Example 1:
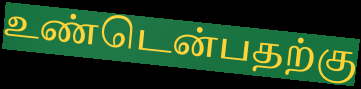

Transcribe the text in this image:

உண்டென்பதற்கு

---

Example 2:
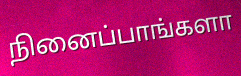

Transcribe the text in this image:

நினைப்பாங்களா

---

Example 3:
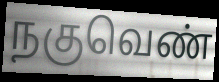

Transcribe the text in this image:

நகுவெண்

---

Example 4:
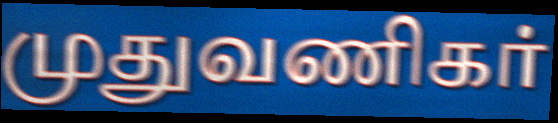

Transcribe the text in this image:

முதுவணிகர்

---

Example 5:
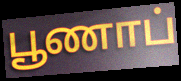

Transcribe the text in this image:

பூணாப்